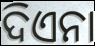
ଦିଏନା